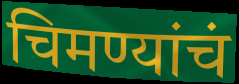
चिमण्यांचं